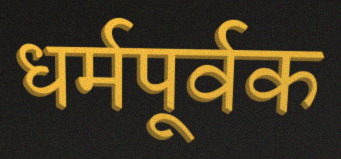
धर्मपूर्वक